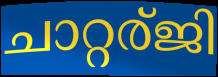
ചാറ്റര്ജി